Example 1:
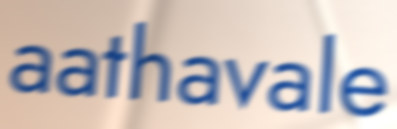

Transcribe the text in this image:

aathavale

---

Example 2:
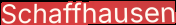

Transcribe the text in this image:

Schaffhausen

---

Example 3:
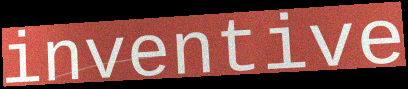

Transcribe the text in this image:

inventive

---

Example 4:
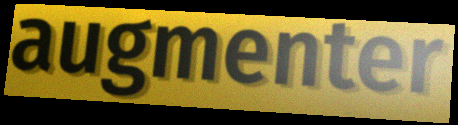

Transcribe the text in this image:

augmenter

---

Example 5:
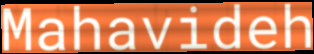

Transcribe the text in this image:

Mahavideh